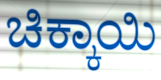
ಚಿಕ್ಕಾಯಿ